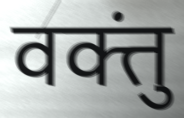
वक्तुं